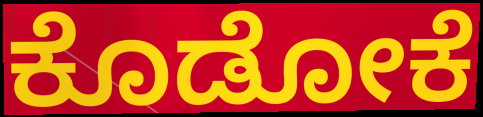
ಕೊಡೋಕೆ